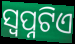
ସ୍ବପ୍ନଟିଏ